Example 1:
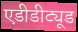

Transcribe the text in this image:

एडीडीट्यूड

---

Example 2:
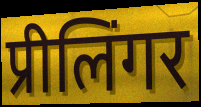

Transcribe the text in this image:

प्रीलिंगर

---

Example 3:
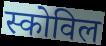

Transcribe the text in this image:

स्कोविल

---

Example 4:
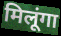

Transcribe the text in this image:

मिलूंगा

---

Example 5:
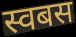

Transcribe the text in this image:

स्वबस